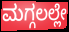
ಮಗ್ಗಲಲ್ಲೇ